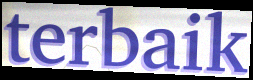
terbaik